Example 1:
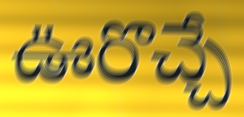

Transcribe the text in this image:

ఊరొచ్చే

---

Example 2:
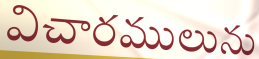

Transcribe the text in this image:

విచారములును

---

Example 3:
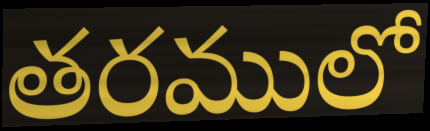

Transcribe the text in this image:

తరములో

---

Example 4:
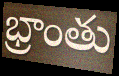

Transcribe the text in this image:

భ్రాంతు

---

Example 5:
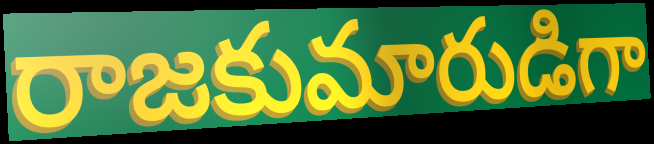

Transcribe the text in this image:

రాజకుమారుడిగా